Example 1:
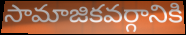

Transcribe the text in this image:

సామాజికవర్గానికి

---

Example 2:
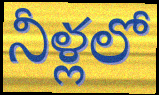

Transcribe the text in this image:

నీళ్లలో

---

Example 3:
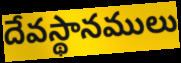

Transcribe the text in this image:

దేవస్థానములు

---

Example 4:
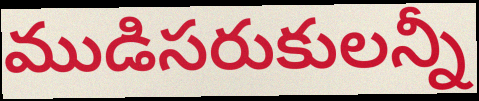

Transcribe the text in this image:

ముడిసరుకులన్నీ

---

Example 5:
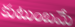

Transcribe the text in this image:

కుటుంబమే